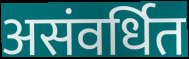
असंवर्धित